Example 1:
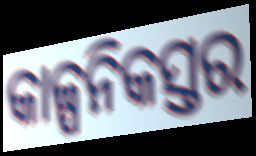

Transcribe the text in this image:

କାଳ୍ପନିକସ୍ତର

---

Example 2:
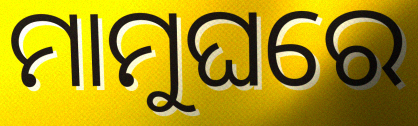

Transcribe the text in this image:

ମାମୁଘରେ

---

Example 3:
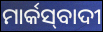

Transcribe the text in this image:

ମାର୍କସ୍‍ବାଦୀ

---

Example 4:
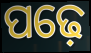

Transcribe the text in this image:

ପଢ଼େ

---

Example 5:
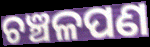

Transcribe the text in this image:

ଚଞ୍ଚଳପଣ